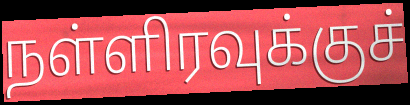
நள்ளிரவுக்குச்